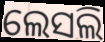
ଲେସଲି